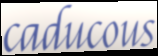
caducous